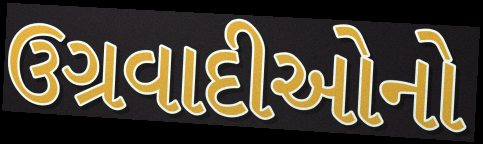
ઉગ્રવાદીઓનો